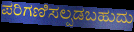
ಪರಿಗಣಿಸಲ್ಪಡಬಹುದು